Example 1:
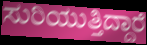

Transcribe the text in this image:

ಸುರಿಯುತ್ತಿದ್ದಾರೆ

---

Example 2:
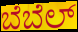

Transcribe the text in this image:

ಬೆಬೆಲ್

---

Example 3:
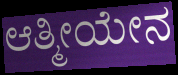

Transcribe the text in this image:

ಆತ್ಮೀಯೇನ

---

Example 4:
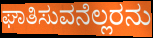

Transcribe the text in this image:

ಘಾತಿಸುವನೆಲ್ಲರನು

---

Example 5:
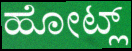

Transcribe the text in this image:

ಹೋಟ್ಲ್